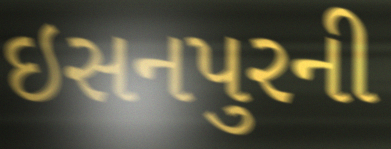
ઇસનપુરની